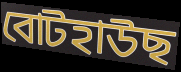
বোটহাউছ